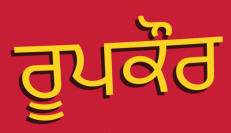
ਰੂਪਕੌਰ